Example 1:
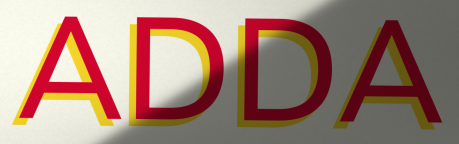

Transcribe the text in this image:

ADDA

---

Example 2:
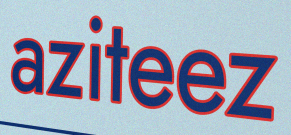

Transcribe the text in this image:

aziteez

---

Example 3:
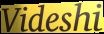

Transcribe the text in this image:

Videshi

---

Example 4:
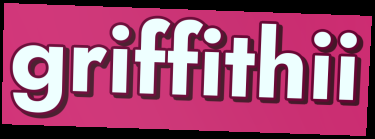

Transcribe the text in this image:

griffithii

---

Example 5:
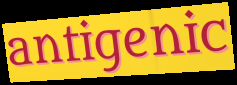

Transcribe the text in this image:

antigenic